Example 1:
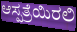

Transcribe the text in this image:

ಆಸ್ಪತ್ರೆಯಿರಲಿ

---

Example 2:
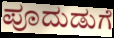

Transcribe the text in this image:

ಪೂದುಡುಗೆ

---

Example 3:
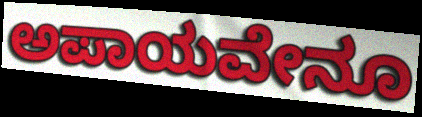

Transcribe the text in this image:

ಅಪಾಯವೇನೂ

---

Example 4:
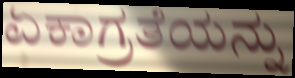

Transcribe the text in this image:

ಏಕಾಗ್ರತೆಯನ್ನು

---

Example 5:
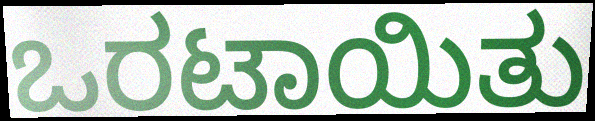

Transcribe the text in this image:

ಒರಟಾಯಿತು